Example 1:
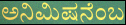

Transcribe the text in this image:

ಅನಿಮಿಷನೆಂಬ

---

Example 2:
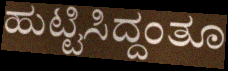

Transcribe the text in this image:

ಹುಟ್ಟಿಸಿದ್ದಂತೂ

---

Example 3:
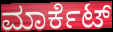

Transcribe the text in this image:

ಮಾರ್ಕೆಟ್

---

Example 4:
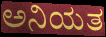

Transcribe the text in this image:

ಅನಿಯತ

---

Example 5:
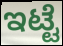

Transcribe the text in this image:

ಇಟ್ಟೆ